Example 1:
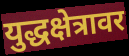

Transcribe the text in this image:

युद्धक्षेत्रावर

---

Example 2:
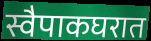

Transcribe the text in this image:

स्वैपाकघरात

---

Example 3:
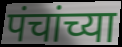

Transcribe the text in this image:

पंचांच्या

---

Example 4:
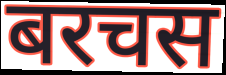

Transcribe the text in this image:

बरचस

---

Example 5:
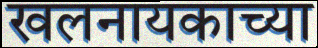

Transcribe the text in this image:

खलनायकाच्या